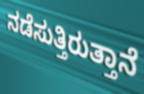
ನಡೆಸುತ್ತಿರುತ್ತಾನೆ